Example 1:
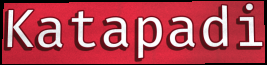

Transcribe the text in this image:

Katapadi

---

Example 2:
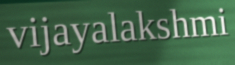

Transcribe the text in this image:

vijayalakshmi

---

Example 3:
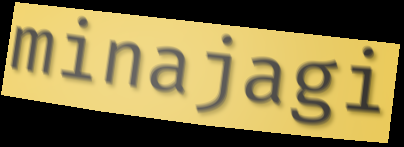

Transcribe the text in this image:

minajagi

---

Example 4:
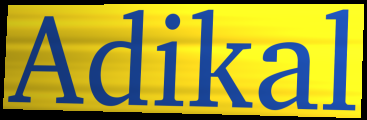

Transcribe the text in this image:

Adikal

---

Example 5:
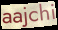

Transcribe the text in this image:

aajchi